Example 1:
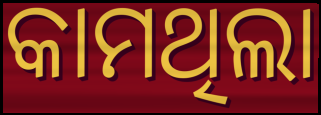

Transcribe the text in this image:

କାମଥିଲା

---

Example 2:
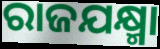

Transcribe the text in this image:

ରାଜଯକ୍ଷ୍ମା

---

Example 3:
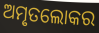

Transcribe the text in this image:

ଅମୃତଲୋକର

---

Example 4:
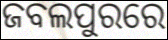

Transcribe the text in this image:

ଜବଲପୁରରେ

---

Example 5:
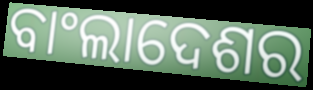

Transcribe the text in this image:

ବାଂଲାଦେଶର